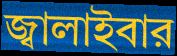
জ্বালাইবার